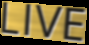
LIVE